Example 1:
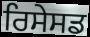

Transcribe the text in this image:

ਰਿਸੇਸਡ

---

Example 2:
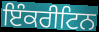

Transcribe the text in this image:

ਇੰਕਰੀਟਿਨ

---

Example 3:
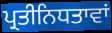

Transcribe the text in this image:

ਪ੍ਰਤੀਨਿਧਤਾਵਾਂ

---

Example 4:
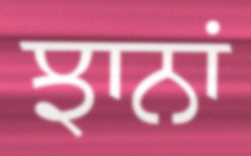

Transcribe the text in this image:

ਝਾਨਾਂ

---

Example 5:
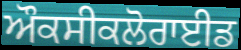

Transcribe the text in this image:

ਔਕਸੀਕਲੋਰਾਈਡ